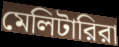
মেলিটারিরা